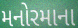
મનોરમાના